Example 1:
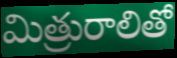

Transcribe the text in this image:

మిత్రురాలితో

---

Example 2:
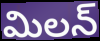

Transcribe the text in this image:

మిలన్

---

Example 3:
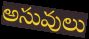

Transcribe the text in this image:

అసువులు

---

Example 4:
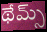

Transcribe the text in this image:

థేమ్స్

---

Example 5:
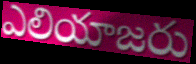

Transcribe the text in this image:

ఎలియాజరు